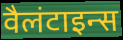
वैलंटाइन्स